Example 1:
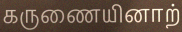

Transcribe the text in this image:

கருணையினாற்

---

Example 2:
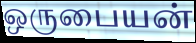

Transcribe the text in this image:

ஒருபையன்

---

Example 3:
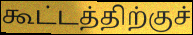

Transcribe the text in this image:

கூட்டத்திற்குச்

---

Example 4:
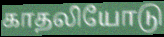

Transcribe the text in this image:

காதலியோடு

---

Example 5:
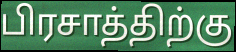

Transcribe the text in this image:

பிரசாத்திற்கு